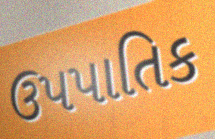
ઉપપાતિક